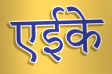
एईके